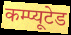
कम्प्यूटेड